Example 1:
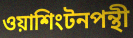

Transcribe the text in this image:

ওয়াশিংটনপন্থী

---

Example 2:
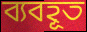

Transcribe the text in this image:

ব্যবহূত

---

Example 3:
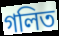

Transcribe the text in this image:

গলিত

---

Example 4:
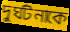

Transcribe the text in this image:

দুর্ঘটনাকে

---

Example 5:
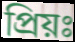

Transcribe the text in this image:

প্রিয়ঃ